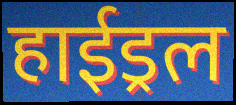
हाईड्रल